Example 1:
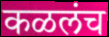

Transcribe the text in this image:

कळलंच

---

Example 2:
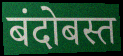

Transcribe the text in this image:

बंदोबस्त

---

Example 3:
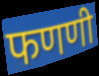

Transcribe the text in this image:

फणणी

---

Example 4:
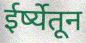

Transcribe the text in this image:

ईर्ष्येतून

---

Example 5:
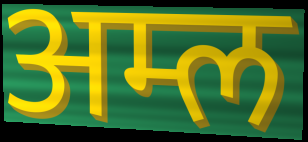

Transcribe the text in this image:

अम्ल